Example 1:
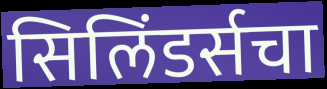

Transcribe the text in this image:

सिलिंडर्सचा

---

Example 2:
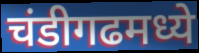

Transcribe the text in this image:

चंडीगढमध्ये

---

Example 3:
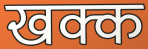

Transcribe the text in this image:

खक्क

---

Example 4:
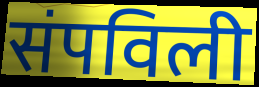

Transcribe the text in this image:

संपविली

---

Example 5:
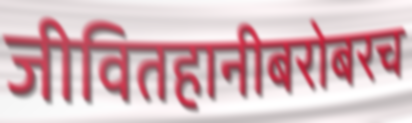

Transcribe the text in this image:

जीवितहानीबरोबरच